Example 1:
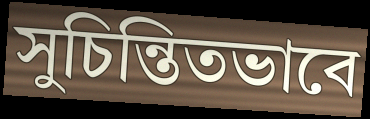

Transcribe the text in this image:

সুচিন্তিতভাবে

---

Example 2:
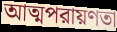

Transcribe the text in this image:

আত্মপরায়ণতা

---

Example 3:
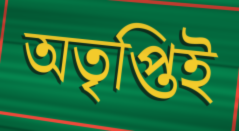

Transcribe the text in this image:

অতৃপ্তিই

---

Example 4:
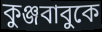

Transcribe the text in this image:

কুঞ্জবাবুকে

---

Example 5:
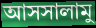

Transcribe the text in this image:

আসসালামু